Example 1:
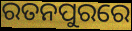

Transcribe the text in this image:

ରତନପୁରରେ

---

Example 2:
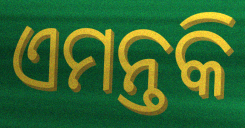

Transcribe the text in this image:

ଏମନ୍ତକି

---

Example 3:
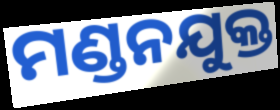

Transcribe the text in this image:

ମଣ୍ଡନଯୁକ୍ତ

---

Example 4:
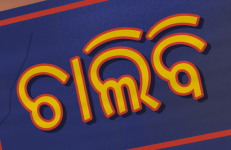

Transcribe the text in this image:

ଚାଲିବି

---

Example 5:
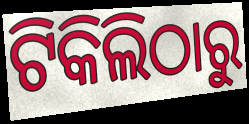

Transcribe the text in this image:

ଟିକିଲିଠାରୁ